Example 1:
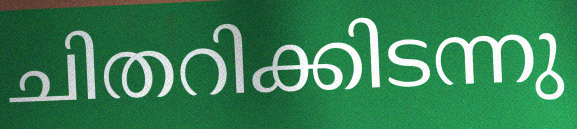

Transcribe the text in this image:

ചിതറിക്കിടന്നു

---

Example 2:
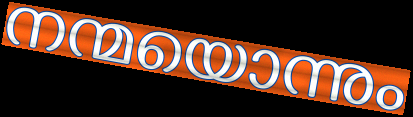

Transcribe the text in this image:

നന്മയൊന്നും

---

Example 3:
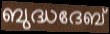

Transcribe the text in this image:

ബുദ്ധദേബ്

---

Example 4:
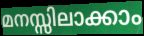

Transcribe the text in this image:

മനസ്സിലാക്കാം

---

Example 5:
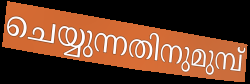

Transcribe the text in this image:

ചെയ്യുന്നതിനുമുമ്പ്